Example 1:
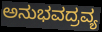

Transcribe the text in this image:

ಅನುಭವದ್ರವ್ಯ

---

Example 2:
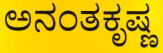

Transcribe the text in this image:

ಅನಂತಕೃಷ್ಣ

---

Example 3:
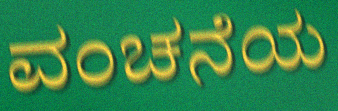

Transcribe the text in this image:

ವಂಚನೆಯ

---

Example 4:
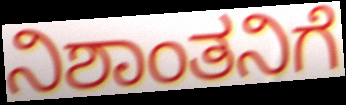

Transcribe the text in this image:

ನಿಶಾಂತನಿಗೆ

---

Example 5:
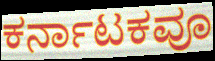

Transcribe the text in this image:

ಕರ್ನಾಟಕವೂ